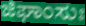
ಜಿಘಾಂಸುಃ